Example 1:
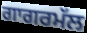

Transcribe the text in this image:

ਗਾਗਰਮੱਲ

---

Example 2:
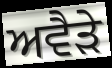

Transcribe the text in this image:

ਅਵੈੜੇ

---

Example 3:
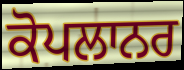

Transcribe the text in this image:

ਕੋਪਲਾਨਰ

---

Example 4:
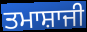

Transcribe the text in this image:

ਤਮਾਸ਼ਾਜੀ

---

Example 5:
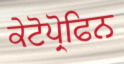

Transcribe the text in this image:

ਕੇਟੋਪ੍ਰੋਫਿਨ